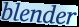
blender